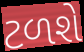
ટળશે